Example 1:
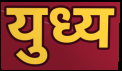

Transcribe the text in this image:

युध्य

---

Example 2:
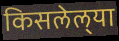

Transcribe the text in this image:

किसलेल्या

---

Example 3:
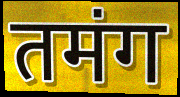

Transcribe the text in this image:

तमंग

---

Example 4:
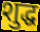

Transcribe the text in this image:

शुद्ध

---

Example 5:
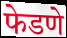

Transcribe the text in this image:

फेडणे